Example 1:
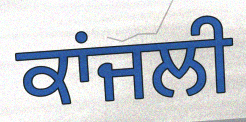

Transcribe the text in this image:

ਕਾਂਜਲੀ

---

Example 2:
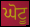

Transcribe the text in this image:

ਘੋਟੂ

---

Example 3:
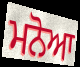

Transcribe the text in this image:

ਮਨੋਆ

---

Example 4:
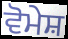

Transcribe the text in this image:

ਵੋਮੇਸ਼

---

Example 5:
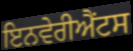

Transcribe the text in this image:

ਇਨਵੇਰੀਐਂਟਸ